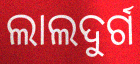
ଲାଲଦୁର୍ଗ